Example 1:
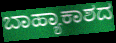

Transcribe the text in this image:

ಬಾಹ್ಯಾಕಾಶದ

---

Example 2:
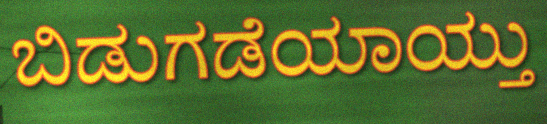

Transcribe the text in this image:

ಬಿಡುಗಡೆಯಾಯ್ತು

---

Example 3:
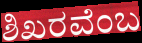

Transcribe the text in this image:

ಶಿಖರವೆಂಬ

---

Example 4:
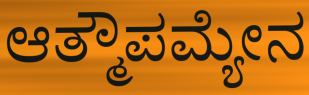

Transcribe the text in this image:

ಆತ್ಮೌಪಮ್ಯೇನ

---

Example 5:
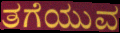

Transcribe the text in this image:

ತಗೆಯುವ